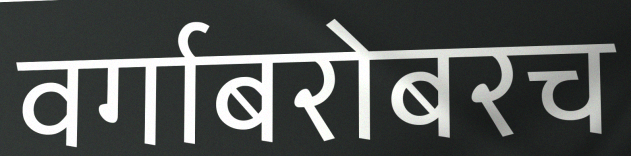
वर्गाबरोबरच